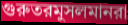
গুরুতরমুসলমানরা